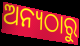
ଅନ୍ୟଠାରୁ